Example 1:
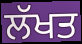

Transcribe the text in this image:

ਲੱਖਤ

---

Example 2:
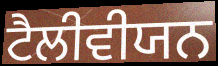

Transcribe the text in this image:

ਟੈਲੀਵੀਯਨ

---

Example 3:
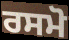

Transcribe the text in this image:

ਰਸਮੋ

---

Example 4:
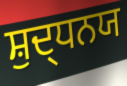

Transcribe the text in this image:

ਸ਼ੁਦ੍ਧਨਯ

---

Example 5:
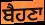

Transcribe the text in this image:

ਬੈਹਣਾ